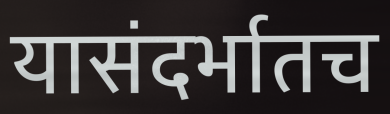
यासंदर्भातच